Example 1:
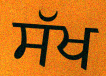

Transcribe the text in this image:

ਸੱਖ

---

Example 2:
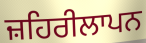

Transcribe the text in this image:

ਜ਼ਹਿਰੀਲਾਪਨ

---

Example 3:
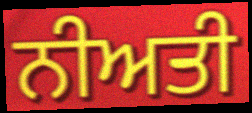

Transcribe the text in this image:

ਨੀਅਤੀ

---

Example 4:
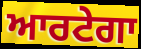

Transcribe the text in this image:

ਆਰਟੇਗਾ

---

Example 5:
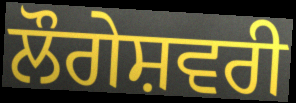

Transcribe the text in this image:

ਲੌਗੇਸ਼ਵਰੀ